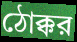
ঠোক্কর